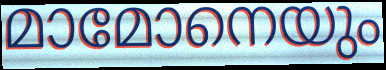
മാമോനെയും